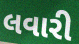
લવારી